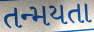
તન્મયતા